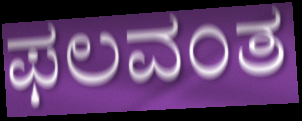
ಫಲವಂತ